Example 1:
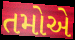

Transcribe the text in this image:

તમોએ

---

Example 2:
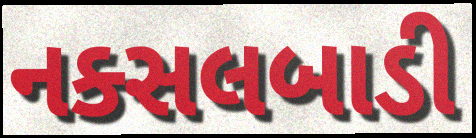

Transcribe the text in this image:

નક્સલબાડી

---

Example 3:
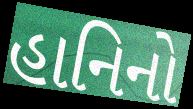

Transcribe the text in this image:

હાનિનો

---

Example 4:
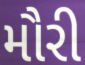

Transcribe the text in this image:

મૌરી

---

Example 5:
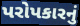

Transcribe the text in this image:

પરોપકારનું